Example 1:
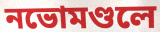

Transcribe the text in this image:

নভোমণ্ডলে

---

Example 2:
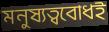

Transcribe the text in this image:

মনুষ্যত্ববোধই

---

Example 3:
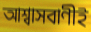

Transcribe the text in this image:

আশ্বাসবাণীই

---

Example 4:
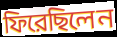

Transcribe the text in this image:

ফিরেছিলেন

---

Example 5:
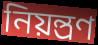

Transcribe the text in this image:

নিয়ন্ত্রণ